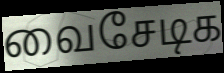
வைசேடிக